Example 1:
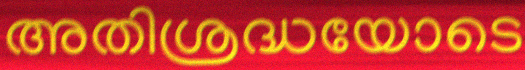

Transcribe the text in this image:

അതിശ്രദ്ധയോടെ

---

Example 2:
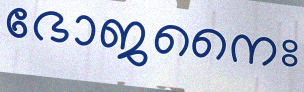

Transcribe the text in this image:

ഭോജനൈഃ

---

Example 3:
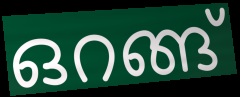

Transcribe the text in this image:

ഒറങ്ങ്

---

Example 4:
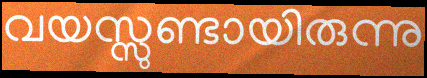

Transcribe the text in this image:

വയസ്സുണ്ടായിരുന്നു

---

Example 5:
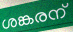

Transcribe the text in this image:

ശങ്കരന്